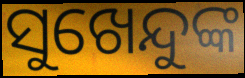
ସୁଖେନ୍ଦୁଙ୍କ